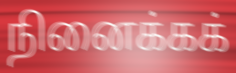
நினைக்கக்